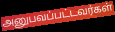
அனுபவப்பட்டவர்கள்